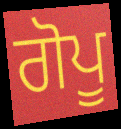
ਗੋਪੂ